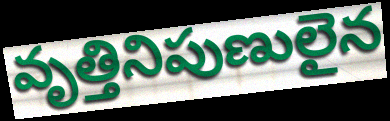
వృత్తినిపుణులైన